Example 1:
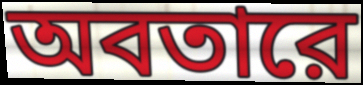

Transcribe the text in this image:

অবতারে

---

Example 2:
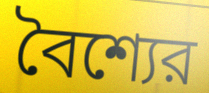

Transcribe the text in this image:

বৈশ্যের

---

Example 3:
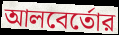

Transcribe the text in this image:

আলবের্তোর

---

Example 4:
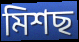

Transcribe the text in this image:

মিশছ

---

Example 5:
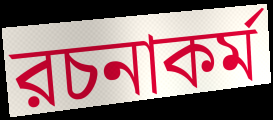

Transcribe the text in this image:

রচনাকর্ম